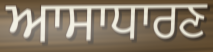
ਆਸਾਧਾਰਣ